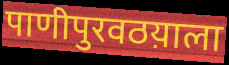
पाणीपुरवठय़ाला